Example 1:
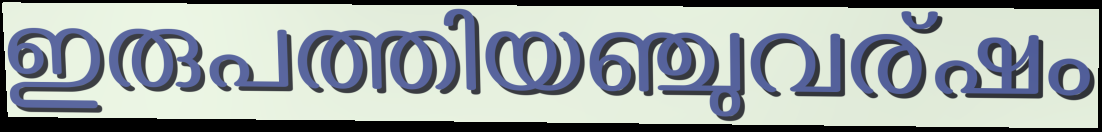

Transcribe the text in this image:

ഇരുപത്തിയഞ്ചുവര്ഷം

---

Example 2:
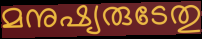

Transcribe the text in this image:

മനുഷ്യരുടേതു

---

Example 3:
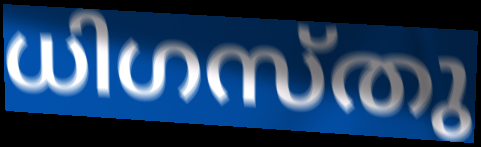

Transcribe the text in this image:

ധിഗസ്തു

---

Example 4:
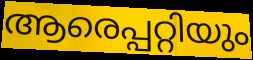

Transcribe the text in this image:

ആരെപ്പറ്റിയും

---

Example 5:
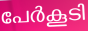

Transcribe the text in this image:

പേർകൂടി